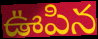
ఊపిన